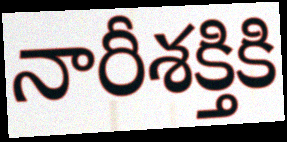
నారీశక్తికి